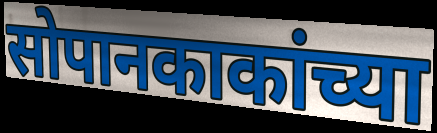
सोपानकाकांच्या